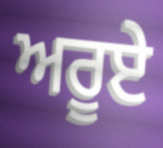
ਅਰੂਏ